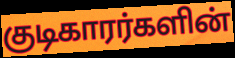
குடிகாரர்களின்